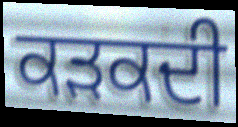
ਕੜਕਦੀ